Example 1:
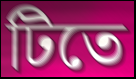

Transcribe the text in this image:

টিতে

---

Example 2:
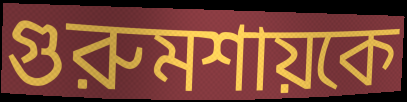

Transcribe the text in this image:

গুরুমশায়কে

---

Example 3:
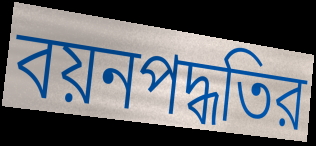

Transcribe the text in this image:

বয়নপদ্ধতির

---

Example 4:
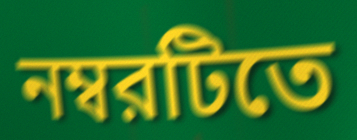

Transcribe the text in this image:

নম্বরটিতে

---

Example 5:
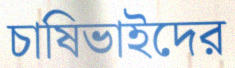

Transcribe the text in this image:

চাষিভাইদের